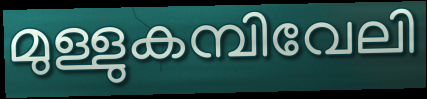
മുള്ളുകമ്പിവേലി